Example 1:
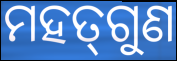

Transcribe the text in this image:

ମହତ୍‍ଗୁଣ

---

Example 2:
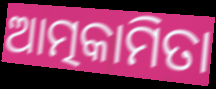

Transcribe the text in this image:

ଆତ୍ମକାମିତା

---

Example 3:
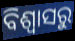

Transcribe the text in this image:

ବିଶ୍ବାସରୁ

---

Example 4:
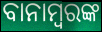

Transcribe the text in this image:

ବାନାମ୍ବରଙ୍କ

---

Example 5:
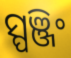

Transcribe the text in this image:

ସ୍ପଞ୍ଜିଂ